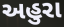
અહુરા